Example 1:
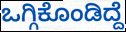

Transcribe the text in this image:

ಒಗ್ಗಿಕೊಂಡಿದ್ದೆ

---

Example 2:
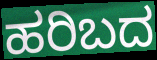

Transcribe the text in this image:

ಹರಿಬದ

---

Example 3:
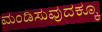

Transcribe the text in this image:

ಮಂಡಿಸುವುದಕ್ಕೂ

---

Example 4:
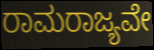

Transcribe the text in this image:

ರಾಮರಾಜ್ಯವೇ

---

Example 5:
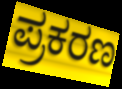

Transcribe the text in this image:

ಪ್ರಕರಣ